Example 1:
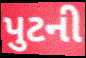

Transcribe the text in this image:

પુટની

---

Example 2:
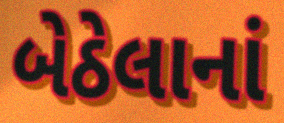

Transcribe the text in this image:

બેઠેલાનાં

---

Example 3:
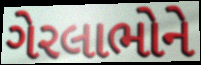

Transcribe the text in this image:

ગેરલાભોને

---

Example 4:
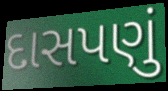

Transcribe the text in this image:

દાસપણું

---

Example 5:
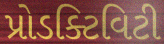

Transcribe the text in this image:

પ્રોડક્ટિવિટી